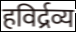
हविर्द्रव्य